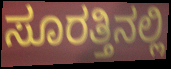
ಸೂರತ್ತಿನಲ್ಲಿ